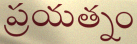
ప్రయత్నం